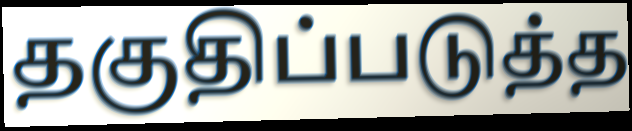
தகுதிப்படுத்த